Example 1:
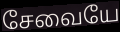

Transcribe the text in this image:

சேவையே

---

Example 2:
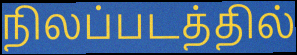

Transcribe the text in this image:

நிலப்படத்தில்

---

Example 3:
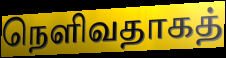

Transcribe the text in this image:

நெளிவதாகத்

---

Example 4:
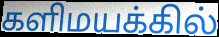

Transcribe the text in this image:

களிமயக்கில்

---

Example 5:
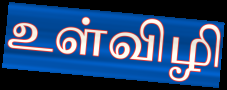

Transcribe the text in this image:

உள்விழி